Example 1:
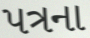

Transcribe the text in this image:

પત્રના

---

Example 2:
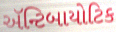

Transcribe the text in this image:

ઍન્ટિબાયોટિક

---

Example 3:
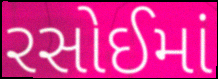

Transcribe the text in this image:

રસોઈમાં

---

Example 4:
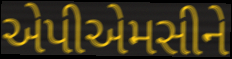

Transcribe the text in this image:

એપીએમસીને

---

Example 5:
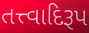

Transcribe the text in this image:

તત્ત્વાદિરૂપ